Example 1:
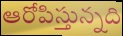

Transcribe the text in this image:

ఆరోపిస్తున్నది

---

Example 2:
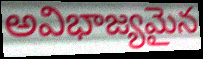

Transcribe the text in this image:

అవిభాజ్యమైన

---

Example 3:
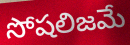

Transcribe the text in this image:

సోషలిజమే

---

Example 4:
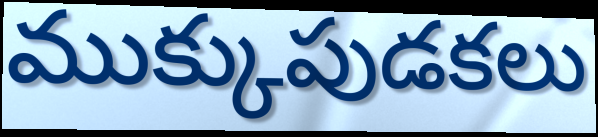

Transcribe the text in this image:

ముక్కుపుడకలు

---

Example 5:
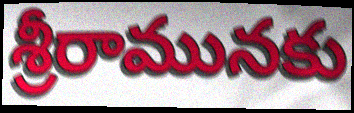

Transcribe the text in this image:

శ్రీరామునకు